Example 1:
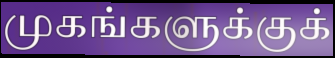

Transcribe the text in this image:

முகங்களுக்குக்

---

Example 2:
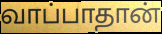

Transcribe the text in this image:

வாப்பாதான்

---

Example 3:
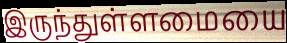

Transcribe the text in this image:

இருந்துள்ளமையை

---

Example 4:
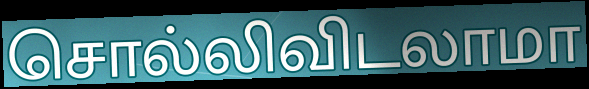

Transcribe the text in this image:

சொல்லிவிடலாமா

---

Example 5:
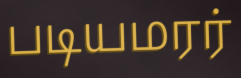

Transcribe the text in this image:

படியமரர்